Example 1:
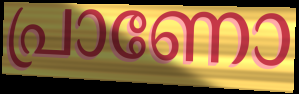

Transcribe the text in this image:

പ്രാണോ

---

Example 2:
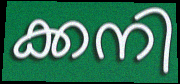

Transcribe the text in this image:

ക്കനി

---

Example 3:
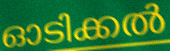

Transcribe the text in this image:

ഓടിക്കൽ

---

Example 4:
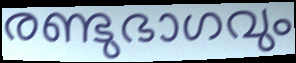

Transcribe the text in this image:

രണ്ടുഭാഗവും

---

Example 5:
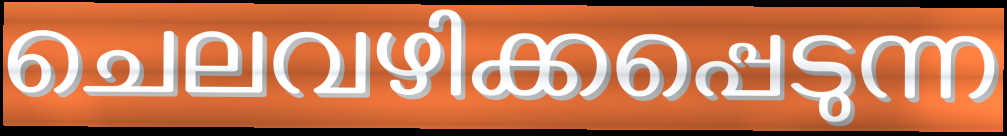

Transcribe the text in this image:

ചെലവഴിക്കപ്പെടുന്ന